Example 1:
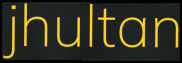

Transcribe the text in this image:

jhultan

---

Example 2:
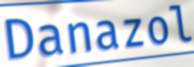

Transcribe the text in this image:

Danazol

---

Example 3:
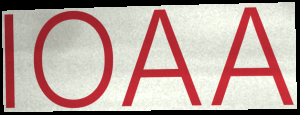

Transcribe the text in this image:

IOAA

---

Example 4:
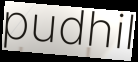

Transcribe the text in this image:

pudhil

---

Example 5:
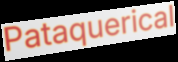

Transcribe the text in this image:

Pataquerical